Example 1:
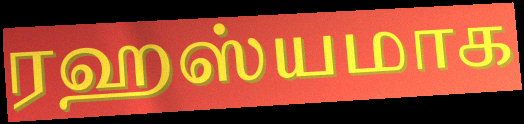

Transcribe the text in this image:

ரஹஸ்யமாக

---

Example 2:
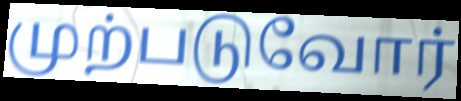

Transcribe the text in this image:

முற்படுவோர்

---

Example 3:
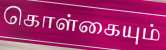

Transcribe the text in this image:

கொள்கையும்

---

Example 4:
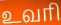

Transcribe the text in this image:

உவரி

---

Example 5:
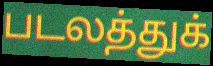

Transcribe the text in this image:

படலத்துக்